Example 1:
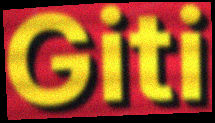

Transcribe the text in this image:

Giti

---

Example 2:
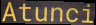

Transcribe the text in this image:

Atunci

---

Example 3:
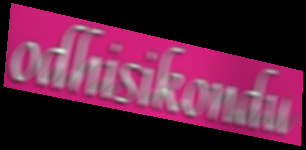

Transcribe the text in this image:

odhisikondu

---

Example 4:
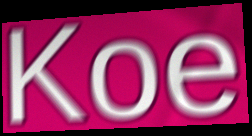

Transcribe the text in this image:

Koe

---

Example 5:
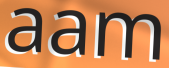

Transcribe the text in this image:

aam